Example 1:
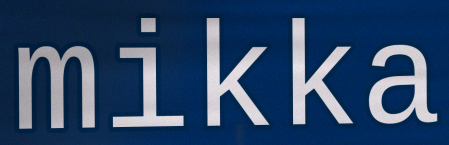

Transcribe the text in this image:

mikka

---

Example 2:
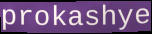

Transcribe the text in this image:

prokashye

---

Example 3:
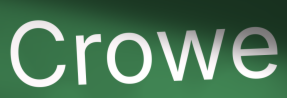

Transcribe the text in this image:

Crowe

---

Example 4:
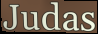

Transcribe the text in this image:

Judas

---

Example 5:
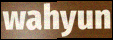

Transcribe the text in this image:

wahyun